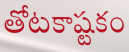
తోటకాష్టకం